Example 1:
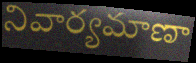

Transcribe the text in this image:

నివార్యమాణా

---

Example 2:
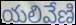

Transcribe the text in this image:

యలివేణి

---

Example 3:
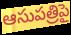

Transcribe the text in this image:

ఆసుపత్రిపై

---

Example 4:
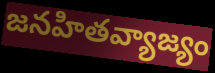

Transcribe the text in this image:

జనహితవ్యాజ్యం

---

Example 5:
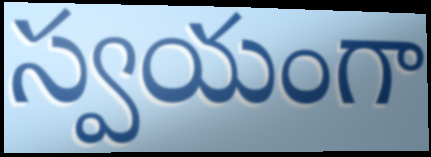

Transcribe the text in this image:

స్వయంగా